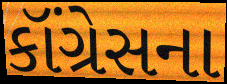
કૉંગ્રેસના